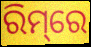
ରିମ୍‌ରେ